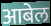
आबेल